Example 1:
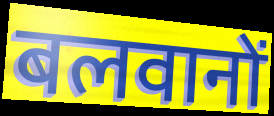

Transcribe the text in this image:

बलवानों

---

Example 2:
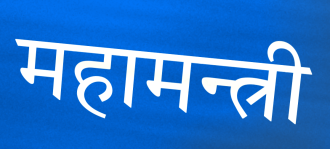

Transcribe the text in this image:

महामन्त्री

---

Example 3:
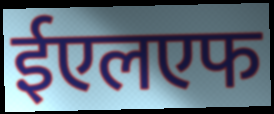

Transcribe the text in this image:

ईएलएफ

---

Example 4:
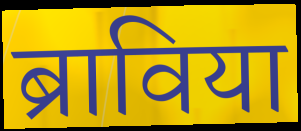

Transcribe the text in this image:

ब्राविया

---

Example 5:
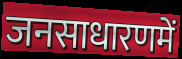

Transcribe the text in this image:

जनसाधारणमें